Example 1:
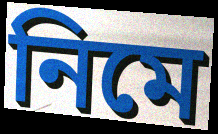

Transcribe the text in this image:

নিমে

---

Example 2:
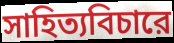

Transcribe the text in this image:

সাহিত্যবিচারে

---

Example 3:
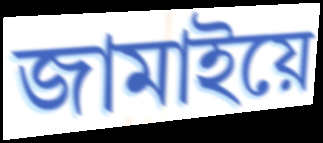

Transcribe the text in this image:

জামাইয়ে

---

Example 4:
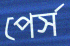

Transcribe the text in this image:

পের্স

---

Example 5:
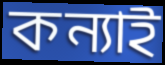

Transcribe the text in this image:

কন্যাই